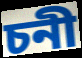
চনী